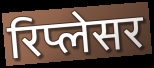
रिप्लेसर